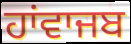
ਹਾਂਵਾਜਬ